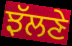
ਝੱਲਣੇ